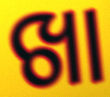
ଖା